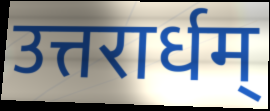
उत्तरार्धम्